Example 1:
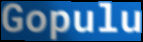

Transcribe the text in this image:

Gopulu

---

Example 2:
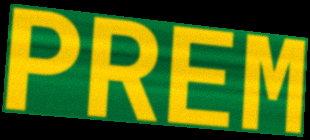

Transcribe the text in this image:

PREM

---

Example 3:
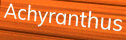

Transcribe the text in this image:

Achyranthus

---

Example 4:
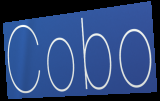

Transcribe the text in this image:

Cobo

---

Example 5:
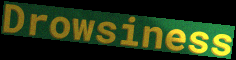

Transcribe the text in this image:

Drowsiness